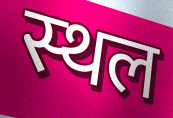
स्‍थल